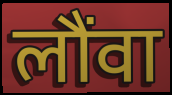
लौंवा